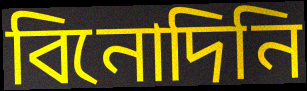
বিনোদিনি